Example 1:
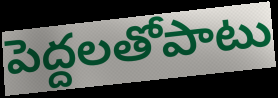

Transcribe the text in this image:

పెద్దలతోపాటు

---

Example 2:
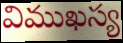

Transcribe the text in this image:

విముఖస్య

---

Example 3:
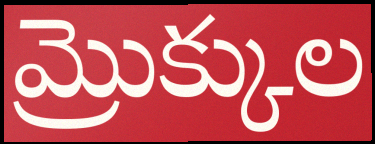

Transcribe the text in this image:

మ్రొక్కుల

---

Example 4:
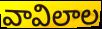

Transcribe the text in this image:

వావిలాల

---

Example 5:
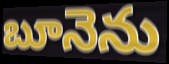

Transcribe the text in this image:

బూనెను